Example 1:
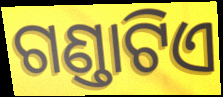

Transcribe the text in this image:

ଗଣ୍ଡାଟିଏ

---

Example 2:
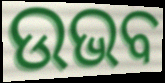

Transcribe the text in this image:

ଉଭବ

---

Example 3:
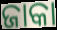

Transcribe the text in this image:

ଜାକା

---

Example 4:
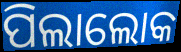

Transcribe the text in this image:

ପିଲାଲୋକ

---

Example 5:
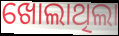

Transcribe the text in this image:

ଖୋଲାଥିଲା